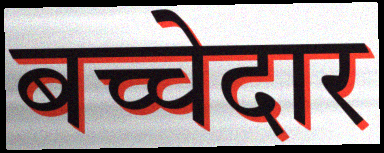
बच्चेदार